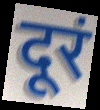
दूरं